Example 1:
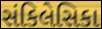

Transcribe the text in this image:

સંકિલેસિકા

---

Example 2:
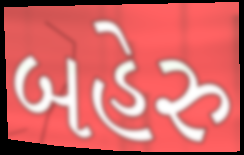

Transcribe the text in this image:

બહેરુ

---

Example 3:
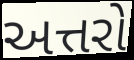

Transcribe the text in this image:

અત્તરો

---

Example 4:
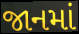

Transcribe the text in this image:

જાનમાં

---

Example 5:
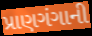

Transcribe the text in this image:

પ્રાણગંગાની